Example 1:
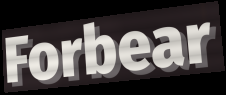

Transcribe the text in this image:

Forbear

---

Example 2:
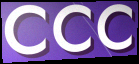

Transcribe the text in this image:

ccc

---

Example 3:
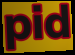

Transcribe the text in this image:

pid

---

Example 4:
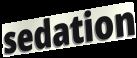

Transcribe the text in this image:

sedation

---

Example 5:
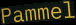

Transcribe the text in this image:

Pammel